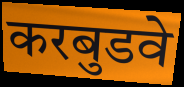
करबुडवे